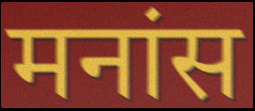
मनांस